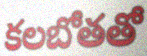
కలబోతతో